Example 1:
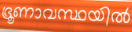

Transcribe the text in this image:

ഭ്രൂണാവസ്ഥയിൽ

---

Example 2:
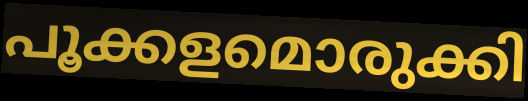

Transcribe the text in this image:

പൂക്കളമൊരുക്കി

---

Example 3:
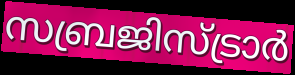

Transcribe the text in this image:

സബ്രജിസ്ട്രാർ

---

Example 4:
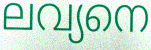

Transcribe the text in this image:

ലവ്യനെ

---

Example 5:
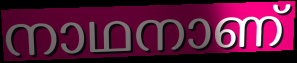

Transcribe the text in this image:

നാഥനാണ്